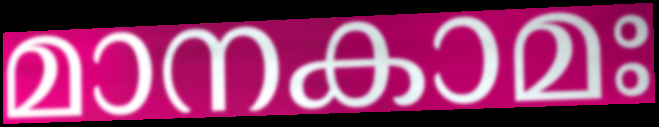
മാനകാമഃ